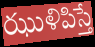
ఝుళిపిస్తే